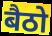
बैठो